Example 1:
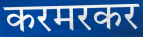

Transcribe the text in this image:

करमरकर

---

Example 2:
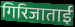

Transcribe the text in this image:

गिरिजाताई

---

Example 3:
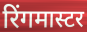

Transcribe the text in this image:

रिंगमास्टर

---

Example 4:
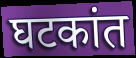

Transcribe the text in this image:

घटकांत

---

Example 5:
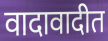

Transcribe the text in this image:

वादावादीत